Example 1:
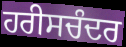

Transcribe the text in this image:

ਹਰੀਸਚੰਦਰ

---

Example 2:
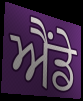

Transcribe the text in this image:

ਐਂਡੇ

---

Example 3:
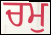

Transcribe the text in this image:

ਚਮੁ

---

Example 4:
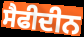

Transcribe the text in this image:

ਸੈਫੀਦੀਨ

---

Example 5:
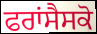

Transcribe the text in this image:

ਫਰਾਂਸੈਸਕੋ